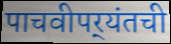
पाचवीपर्यंतची